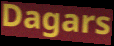
Dagars